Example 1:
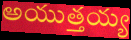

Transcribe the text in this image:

అయుత్తయ్య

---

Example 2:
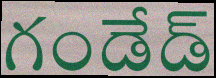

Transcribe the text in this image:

గండేడ్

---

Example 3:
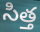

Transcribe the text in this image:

సిత్త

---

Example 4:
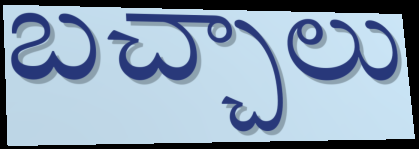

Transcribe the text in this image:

బచ్చాలు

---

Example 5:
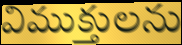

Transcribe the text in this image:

విముక్తులను